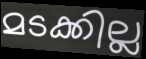
മടക്കില്ല